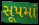
સૂપમાં